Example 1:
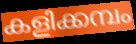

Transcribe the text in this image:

കളിക്കമ്പം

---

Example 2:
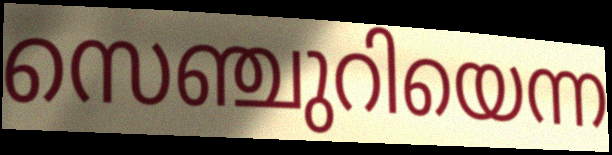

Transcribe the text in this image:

സെഞ്ചുറിയെന്ന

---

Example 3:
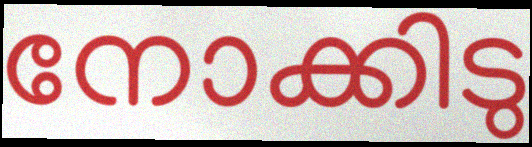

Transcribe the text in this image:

നോക്കിടു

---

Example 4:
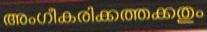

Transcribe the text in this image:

അംഗീകരിക്കത്തക്കതും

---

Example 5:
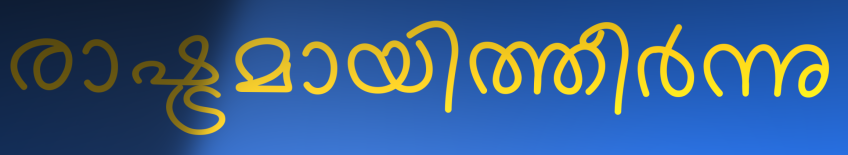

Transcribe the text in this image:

രാഷ്ട്രമായിത്തീർന്നു